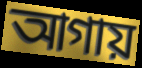
আগায়